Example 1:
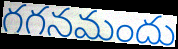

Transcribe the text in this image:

గగనమందు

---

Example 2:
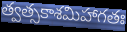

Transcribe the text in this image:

త్వత్సకాశమిహాగతః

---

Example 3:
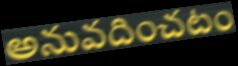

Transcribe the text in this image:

అనువదించటం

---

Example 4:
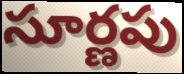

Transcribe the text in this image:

సూర్ణపు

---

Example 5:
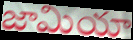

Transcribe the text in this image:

జామియా